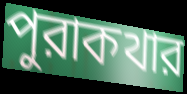
পুরাকথার